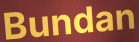
Bundan